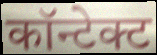
कॉन्टेक्ट